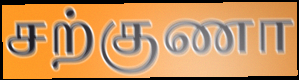
சற்குணா